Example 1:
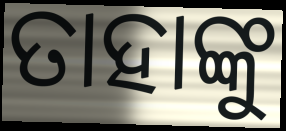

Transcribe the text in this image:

ତାହାଙ୍କୁ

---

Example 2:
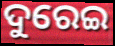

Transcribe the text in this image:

ଦୁରେଇ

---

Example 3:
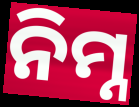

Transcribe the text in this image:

ନିମ୍ନ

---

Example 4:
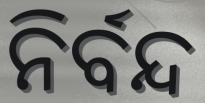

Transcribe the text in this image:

ନିର୍ବନ୍ଦ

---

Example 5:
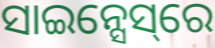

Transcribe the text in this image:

ସାଇନ୍ସେସ୍‌ରେ